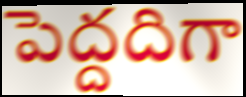
పెద్దదిగా